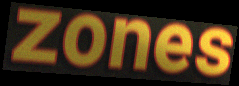
zones